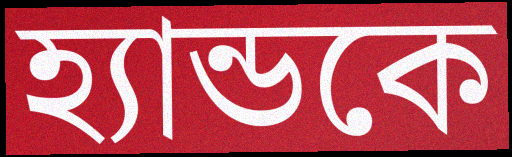
হ্যান্ডকে